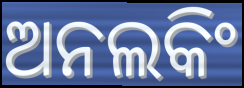
ଅନଲକିଂ